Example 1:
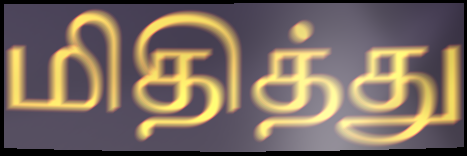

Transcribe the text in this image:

மிதித்து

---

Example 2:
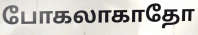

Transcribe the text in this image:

போகலாகாதோ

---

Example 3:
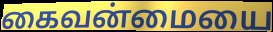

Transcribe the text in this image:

கைவன்மையை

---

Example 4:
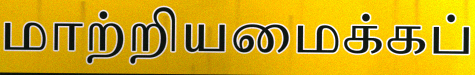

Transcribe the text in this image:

மாற்றியமைக்கப்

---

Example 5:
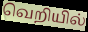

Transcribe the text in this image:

வெறியில்